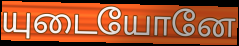
யுடையோனே